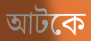
আটকে